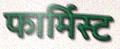
फार्मिस्ट